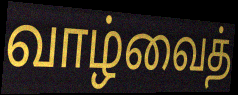
வாழ்வைத்